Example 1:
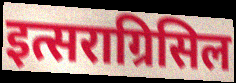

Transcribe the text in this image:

इत्सराग्रिसिल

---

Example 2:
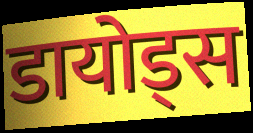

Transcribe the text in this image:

डायोड्स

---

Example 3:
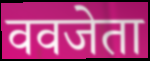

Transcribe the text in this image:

ववजेता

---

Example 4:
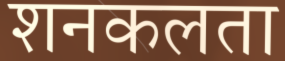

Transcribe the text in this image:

शनकलता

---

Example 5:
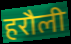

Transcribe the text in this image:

हरौली